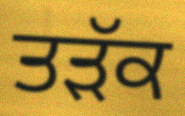
ਤੜੱਕ